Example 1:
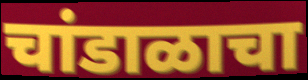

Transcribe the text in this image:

चांडाळाचा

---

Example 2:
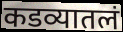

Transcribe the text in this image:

कडव्यातलं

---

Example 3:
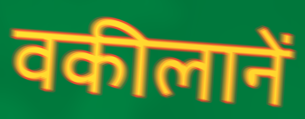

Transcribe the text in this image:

वकीलानें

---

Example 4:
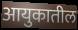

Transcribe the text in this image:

आयुकातील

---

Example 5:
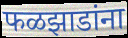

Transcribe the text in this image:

फळझाडांना